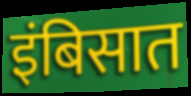
इंबिसात